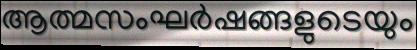
ആത്മസംഘർഷങ്ങളുടെയും